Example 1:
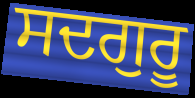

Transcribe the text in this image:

ਸਦਗੁਰੂ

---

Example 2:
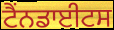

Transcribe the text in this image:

ਟੈਂਨਡਾਈਟਸ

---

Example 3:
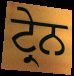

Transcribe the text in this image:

ਟ੍ਰੇਨ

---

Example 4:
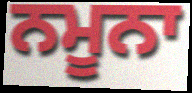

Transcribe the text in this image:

ਨਮੂਨਾ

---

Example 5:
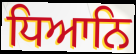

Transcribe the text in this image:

ਧਿਆਨਿ